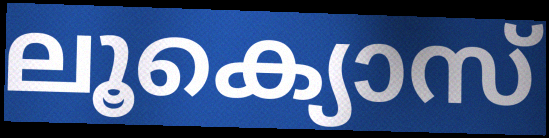
ലൂക്യൊസ്